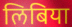
लिबिया